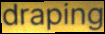
draping